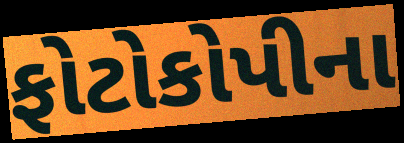
ફોટોકોપીના